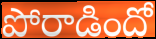
పోరాడిందో